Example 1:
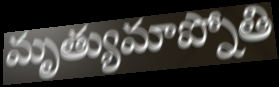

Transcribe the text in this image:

మృత్యుమాప్నోతి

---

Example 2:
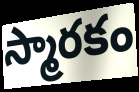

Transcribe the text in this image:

స్మారకం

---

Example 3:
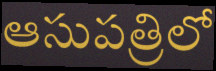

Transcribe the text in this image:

ఆసుపత్రిలో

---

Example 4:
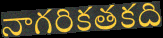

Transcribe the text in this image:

నాగరికతకది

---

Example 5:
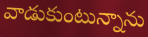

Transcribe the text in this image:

వాడుకుంటున్నాను